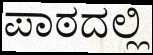
ಪಾಠದಲ್ಲಿ